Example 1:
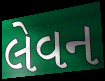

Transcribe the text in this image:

લેવન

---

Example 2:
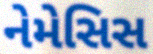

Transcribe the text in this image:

નેમેસિસ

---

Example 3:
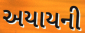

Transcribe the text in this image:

અયાયની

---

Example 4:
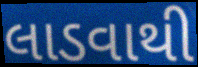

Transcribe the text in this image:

લાડવાથી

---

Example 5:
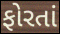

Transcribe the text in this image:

ફોરતાં